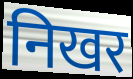
निखर